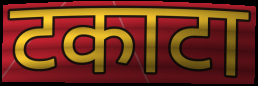
टकाटा